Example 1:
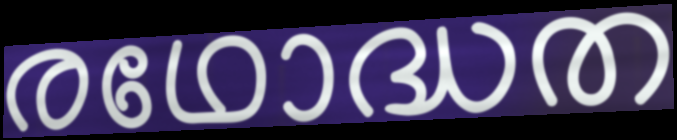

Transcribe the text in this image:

രഥോദ്ധത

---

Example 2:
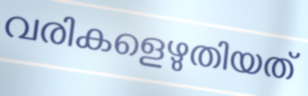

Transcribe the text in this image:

വരികളെഴുതിയത്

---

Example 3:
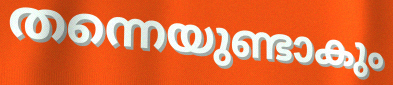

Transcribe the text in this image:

തന്നെയുണ്ടാകും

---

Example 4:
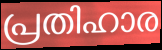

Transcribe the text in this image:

പ്രതിഹാര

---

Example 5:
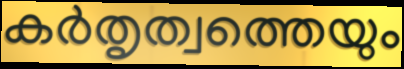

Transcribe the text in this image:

കർതൃത്വത്തെയും